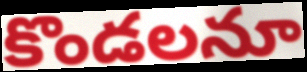
కొండలనూ